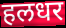
हलधर